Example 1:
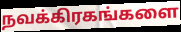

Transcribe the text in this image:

நவக்கிரகங்களை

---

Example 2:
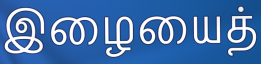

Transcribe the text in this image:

இழையைத்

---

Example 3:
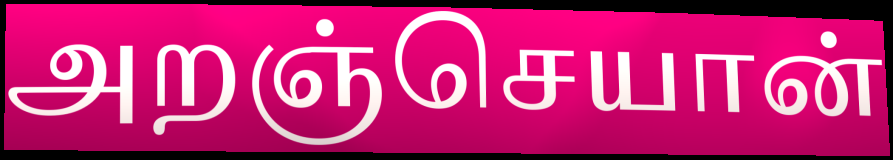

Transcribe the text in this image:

அறஞ்செயான்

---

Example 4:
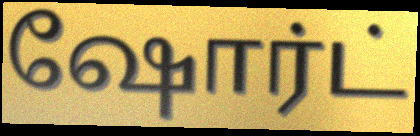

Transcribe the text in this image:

ஷோர்ட்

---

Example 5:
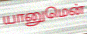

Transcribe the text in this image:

யானுமென்